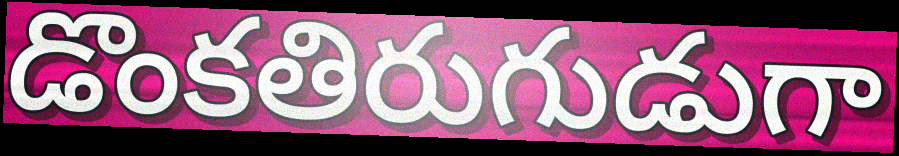
డొంకతిరుగుడుగా